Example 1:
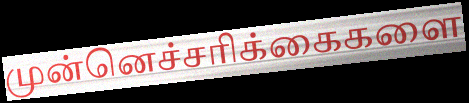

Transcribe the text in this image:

முன்னெச்சரிக்கைகளை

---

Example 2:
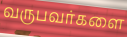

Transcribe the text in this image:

வருபவர்களை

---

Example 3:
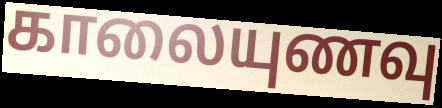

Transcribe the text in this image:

காலையுணவு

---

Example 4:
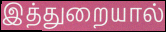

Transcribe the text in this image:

இத்துறையால்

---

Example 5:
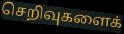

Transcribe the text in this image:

செறிவுகளைக்